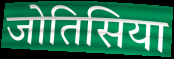
जोतिसिया